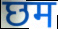
छम